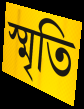
স্মৃতি